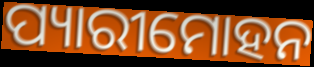
ପ୍ୟାରୀମୋହନ